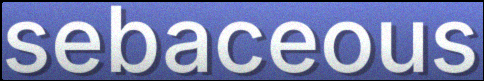
sebaceous